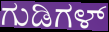
ಗುಡಿಗಳ್